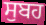
ਸੁਬਹ